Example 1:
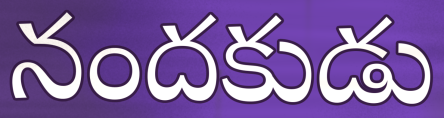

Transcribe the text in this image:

నందకుడు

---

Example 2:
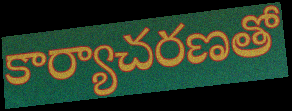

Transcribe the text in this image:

కార్యాచరణతో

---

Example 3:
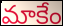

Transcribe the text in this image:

మాకేం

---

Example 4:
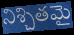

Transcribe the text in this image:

నిశ్చితమై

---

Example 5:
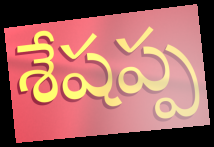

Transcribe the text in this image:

శేషప్ప